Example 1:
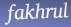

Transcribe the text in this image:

fakhrul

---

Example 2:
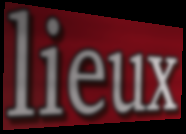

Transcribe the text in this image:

lieux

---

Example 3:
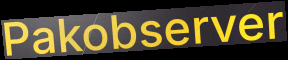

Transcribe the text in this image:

Pakobserver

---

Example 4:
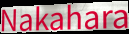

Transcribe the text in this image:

Nakahara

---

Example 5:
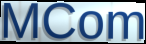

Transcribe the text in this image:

MCom